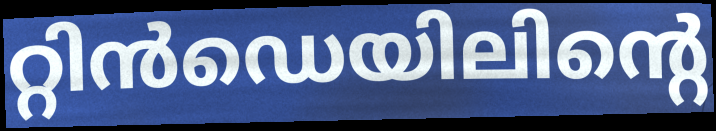
റ്റിൻഡെയിലിന്റെ